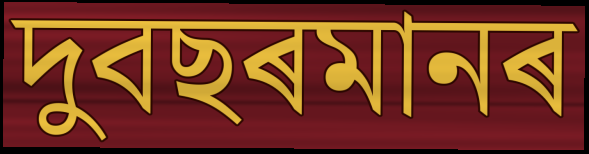
দুবছৰমানৰ